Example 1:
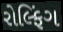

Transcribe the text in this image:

રોલ્ફિંગ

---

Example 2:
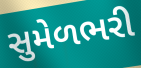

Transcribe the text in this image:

સુમેળભરી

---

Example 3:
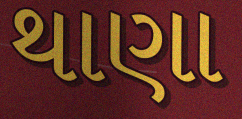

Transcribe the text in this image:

થાણા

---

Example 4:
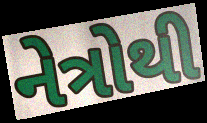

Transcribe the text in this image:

નેત્રોથી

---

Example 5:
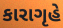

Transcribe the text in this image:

કારાગૃહે